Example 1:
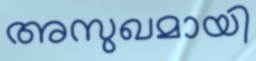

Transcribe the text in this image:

അസുഖമായി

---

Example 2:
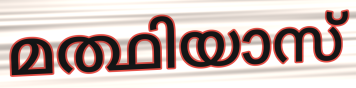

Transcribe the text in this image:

മത്ഥിയാസ്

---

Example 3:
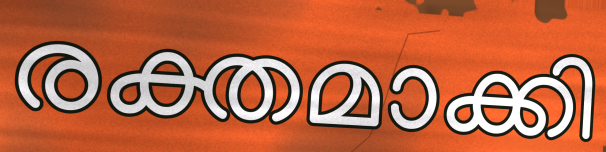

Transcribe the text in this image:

രക്തമാക്കി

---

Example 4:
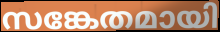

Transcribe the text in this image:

സങ്കേതമായി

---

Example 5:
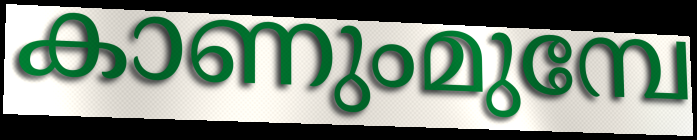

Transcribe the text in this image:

കാണുംമുമ്പേ